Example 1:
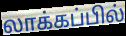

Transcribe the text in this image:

லாக்கப்பில்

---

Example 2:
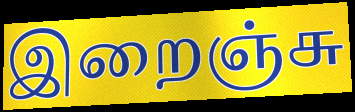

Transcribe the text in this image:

இறைஞ்சு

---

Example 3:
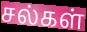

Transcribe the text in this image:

சல்கள்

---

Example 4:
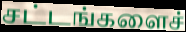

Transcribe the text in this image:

சட்டங்களைச்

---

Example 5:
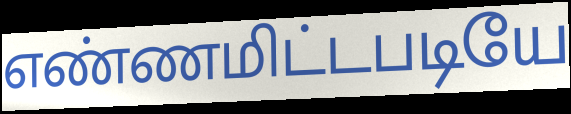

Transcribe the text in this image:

எண்ணமிட்டபடியே